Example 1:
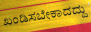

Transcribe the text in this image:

ಖಂಡಿಸಬೇಕಾದದ್ದು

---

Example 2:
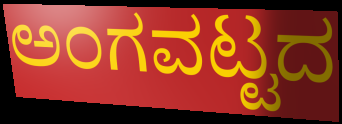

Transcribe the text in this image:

ಅಂಗವಟ್ಟದ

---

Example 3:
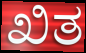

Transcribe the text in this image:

ಖಿತ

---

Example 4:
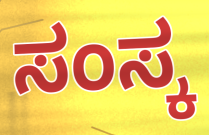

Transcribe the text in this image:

ಸಂಸ್ಕ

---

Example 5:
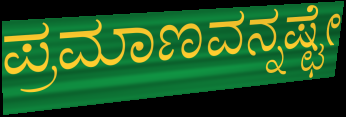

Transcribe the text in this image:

ಪ್ರಮಾಣವನ್ನಷ್ಟೇ